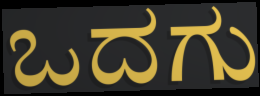
ಒದಗು